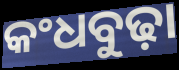
କଂଧବୁଢ଼ା